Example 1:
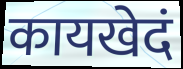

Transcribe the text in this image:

कायखेदं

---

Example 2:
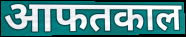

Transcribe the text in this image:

आफतकाल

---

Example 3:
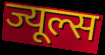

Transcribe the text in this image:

ज्यूल्स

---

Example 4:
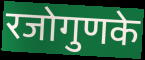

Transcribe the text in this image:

रजोगुणके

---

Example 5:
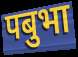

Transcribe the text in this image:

पबुभा